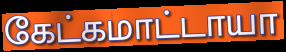
கேட்கமாட்டாயா